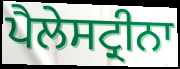
ਪੈਲੇਸਟ੍ਰੀਨਾ